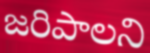
జరిపాలని